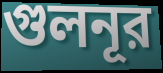
গুলনূর